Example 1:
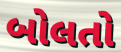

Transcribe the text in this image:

બોલતો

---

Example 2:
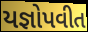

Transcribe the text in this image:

યજ્ઞોપવીત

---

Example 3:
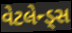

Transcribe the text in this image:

વેટલેન્ડ્સ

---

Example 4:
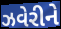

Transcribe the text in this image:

ઝવેરીને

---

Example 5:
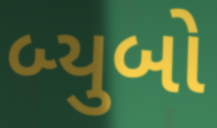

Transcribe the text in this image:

બ્યુબો